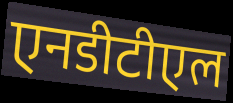
एनडीटीएल